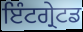
ਇੰਟਗ੍ਰੇਟਡ